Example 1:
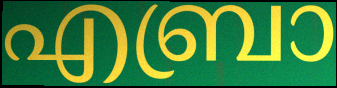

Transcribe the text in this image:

എബ്രാ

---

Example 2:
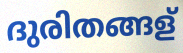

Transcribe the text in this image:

ദുരിതങ്ങള്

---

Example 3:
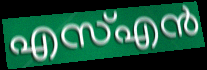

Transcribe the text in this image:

എസ്എൻ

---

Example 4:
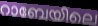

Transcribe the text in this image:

റാബേയിലെ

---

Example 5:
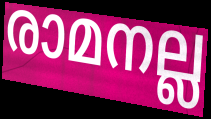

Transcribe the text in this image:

രാമനല്ല